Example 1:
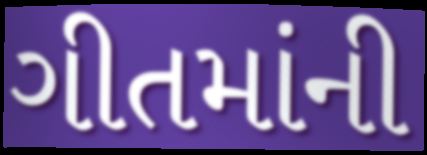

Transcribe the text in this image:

ગીતમાંની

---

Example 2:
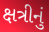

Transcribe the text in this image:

ક્ષત્રીનું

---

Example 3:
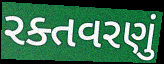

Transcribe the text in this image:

રક્તવરણું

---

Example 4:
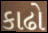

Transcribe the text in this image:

કાઢો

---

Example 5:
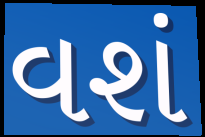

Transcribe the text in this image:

વશં